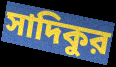
সাদিকুর